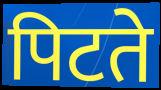
पिटते